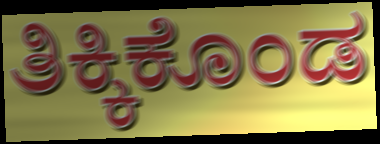
ತಿಕ್ಕಿಕೊಂಡ